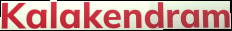
Kalakendram